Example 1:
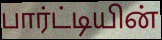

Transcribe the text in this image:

பார்ட்டியின்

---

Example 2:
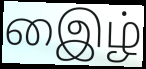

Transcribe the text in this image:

இைழ்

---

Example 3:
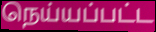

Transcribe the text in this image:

நெய்யப்பட்ட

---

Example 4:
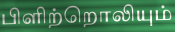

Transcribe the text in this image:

பிளிற்றொலியும்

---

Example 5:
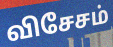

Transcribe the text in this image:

விசேசம்